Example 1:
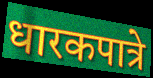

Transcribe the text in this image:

धारकपात्रे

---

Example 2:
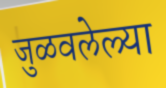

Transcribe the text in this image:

जुळवलेल्या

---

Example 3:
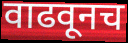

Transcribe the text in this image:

वाढवूनच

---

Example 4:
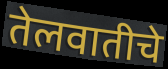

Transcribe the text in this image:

तेलवातीचे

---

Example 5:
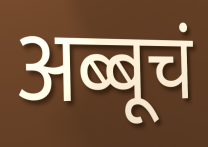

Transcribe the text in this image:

अब्बूचं